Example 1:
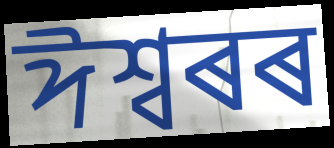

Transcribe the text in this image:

ঈশ্বৰৰ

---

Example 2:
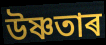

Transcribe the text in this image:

উষ্ণতাৰ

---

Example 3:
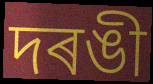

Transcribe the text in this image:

দৰঙী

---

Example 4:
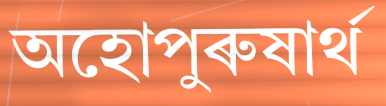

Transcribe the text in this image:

অহোপুৰুষাৰ্থ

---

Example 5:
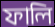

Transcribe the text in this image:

ফালি